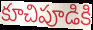
కూచిపూడికి